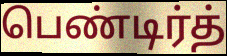
பெண்டிர்த்